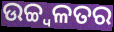
ଉଚ୍ଚ୍ୱଳତର